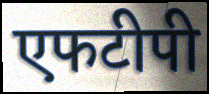
एफटीपी